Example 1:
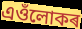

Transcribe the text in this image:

এওঁলোকৰ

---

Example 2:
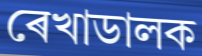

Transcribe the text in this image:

ৰেখাডালক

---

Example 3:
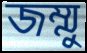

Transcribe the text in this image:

জম্মু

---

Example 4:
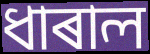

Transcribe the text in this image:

ধাৰাল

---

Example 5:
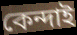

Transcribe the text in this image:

কেন্দাই